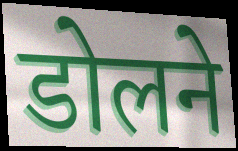
डोलने